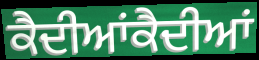
ਕੈਦੀਆਂਕੈਦੀਆਂ